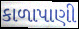
કાળાપાણી